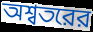
অশ্বতরের